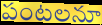
పంటలనూ